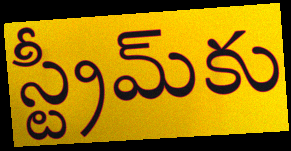
స్ట్రీమ్‌కు